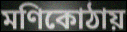
মণিকোঠায়